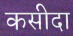
कसीदा